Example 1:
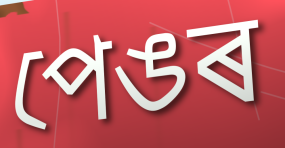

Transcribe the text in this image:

পেঙৰ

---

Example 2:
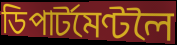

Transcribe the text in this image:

ডিপাৰ্টমেণ্টলৈ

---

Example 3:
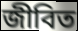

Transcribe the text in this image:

জীবিত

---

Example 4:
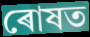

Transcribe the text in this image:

ৰোষত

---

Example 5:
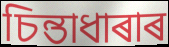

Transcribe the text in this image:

চিন্তাধাৰাৰ